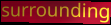
surrounding